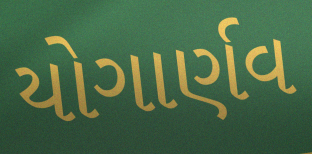
યોગાર્ણવ